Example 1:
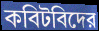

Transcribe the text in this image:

কবিটবিদের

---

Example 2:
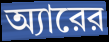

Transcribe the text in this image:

অ্যারের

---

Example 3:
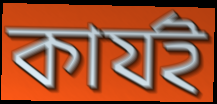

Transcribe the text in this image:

কার্যই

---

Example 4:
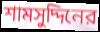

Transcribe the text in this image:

শামসুদ্দিনের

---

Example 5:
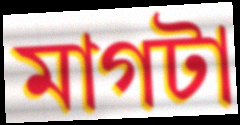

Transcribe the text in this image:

মাগটা